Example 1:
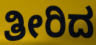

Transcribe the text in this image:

ತೀರಿದ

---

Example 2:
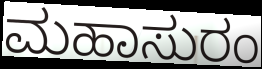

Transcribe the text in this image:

ಮಹಾಸುರಂ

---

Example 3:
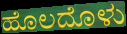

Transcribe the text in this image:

ಹೊಲದೊಳು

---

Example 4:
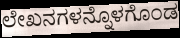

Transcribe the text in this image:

ಲೇಖನಗಳನ್ನೊಳಗೊಂಡ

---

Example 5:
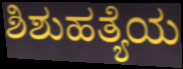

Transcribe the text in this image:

ಶಿಶುಹತ್ಯೆಯ